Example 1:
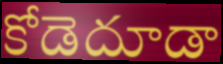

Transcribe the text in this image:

కోడెదూడా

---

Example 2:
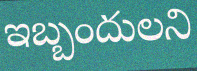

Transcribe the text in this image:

ఇబ్బందులని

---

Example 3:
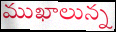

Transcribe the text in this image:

ముఖాలున్న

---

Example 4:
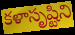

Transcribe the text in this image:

కళాసృష్టిని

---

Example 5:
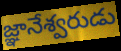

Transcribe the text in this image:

జ్ఞానేశ్వరుడు